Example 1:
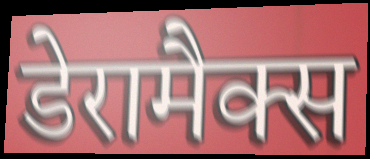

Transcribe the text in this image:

डेरामैक्स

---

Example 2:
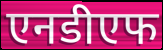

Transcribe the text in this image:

एनडीएफ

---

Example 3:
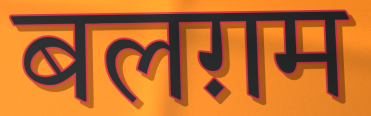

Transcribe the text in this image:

बलग़म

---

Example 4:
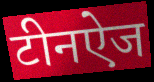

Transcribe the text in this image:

टीनऐज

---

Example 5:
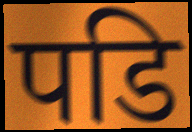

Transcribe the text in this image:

पडि